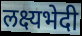
लक्ष्यभेदी